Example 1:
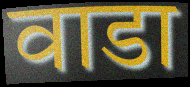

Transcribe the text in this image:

वाडा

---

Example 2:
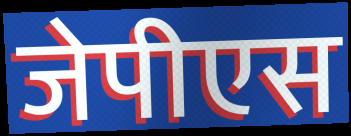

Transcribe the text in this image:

जेपीएस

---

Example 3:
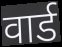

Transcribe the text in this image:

वार्ड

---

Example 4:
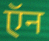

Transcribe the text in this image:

ऍन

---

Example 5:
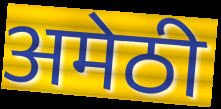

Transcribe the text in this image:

अमेठी